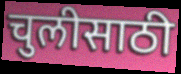
चुलीसाठी